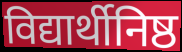
विद्यार्थीनिष्ठ